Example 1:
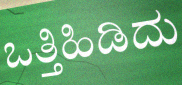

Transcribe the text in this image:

ಒತ್ತಿಹಿಡಿದು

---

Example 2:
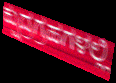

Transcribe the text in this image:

ಕ್ಷುದ್ರಗ್ರಹಗಳಲ್ಲಿ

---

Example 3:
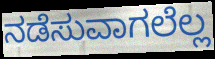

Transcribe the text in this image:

ನಡೆಸುವಾಗಲೆಲ್ಲ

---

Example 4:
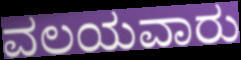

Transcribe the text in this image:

ವಲಯವಾರು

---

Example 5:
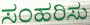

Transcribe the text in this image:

ಸಂಹರಿಸು